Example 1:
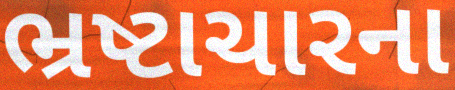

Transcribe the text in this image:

ભ્રષ્ટાચારના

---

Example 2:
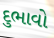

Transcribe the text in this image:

દુભાવો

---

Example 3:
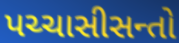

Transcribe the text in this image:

પચ્ચાસીસન્તો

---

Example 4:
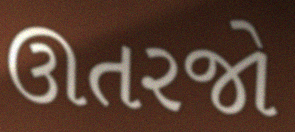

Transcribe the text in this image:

ઊતરજો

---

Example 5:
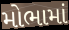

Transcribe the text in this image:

મોભામાં